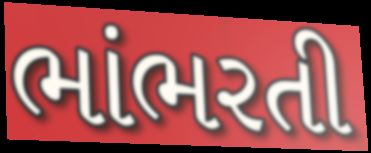
ભાંભરતી